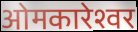
ओमकारेश्वर